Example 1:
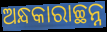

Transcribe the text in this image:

ଅନ୍ଧକାରାଚ୍ଛନ୍ନ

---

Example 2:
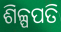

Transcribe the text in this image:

ଶିଳ୍ପପତି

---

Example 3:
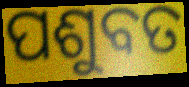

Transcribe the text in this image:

ପଶୁବତ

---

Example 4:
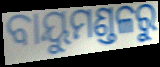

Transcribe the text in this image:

ବାୟୁମଣ୍ଡଳରୁ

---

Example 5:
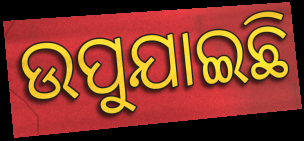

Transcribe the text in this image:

ଉପୁଯାଇଛି